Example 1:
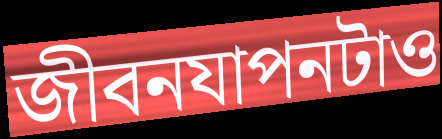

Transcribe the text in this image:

জীবনযাপনটাও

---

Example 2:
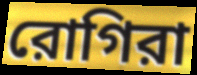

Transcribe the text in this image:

রোগিরা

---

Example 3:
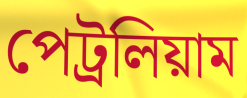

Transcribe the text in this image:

পেট্রলিয়াম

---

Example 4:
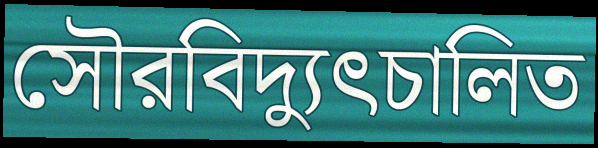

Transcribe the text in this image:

সৌরবিদ্যুৎচালিত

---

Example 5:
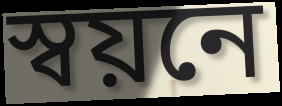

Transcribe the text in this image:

স্বয়নে